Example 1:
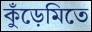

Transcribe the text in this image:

কুঁড়েমিতে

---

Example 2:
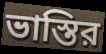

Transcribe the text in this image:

ভাস্তির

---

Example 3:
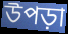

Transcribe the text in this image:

উপড়া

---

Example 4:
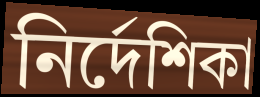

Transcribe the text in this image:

নির্দেশিকা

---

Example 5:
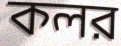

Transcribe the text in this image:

কলর